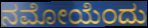
ನಮೋಯೆಂದು